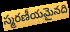
స్మరణీయమైనది